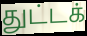
துட்டக்